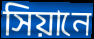
সিয়ানে